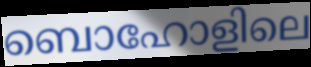
ബൊഹോളിലെ